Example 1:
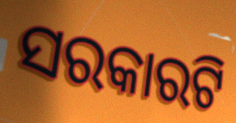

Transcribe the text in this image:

ସରକାରଟି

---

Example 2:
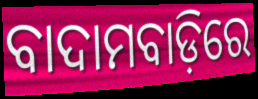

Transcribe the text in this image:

ବାଦାମବାଡ଼ିରେ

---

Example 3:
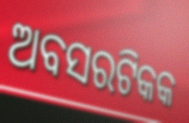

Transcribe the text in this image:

ଅବସରଟିକକ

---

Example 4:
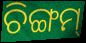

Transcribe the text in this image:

ଚିଙ୍ଗମ୍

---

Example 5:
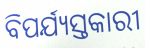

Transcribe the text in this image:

ବିପର୍ଯ୍ୟସ୍ତକାରୀ